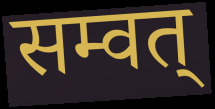
सम्वत्